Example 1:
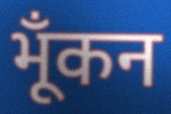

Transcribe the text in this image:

भूँकन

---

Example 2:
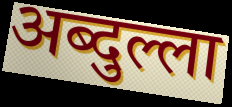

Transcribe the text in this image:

अब्दुल्ला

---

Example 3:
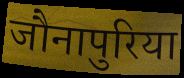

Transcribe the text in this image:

जौनापुरिया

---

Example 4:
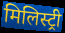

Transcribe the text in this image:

मिलिस्ट्री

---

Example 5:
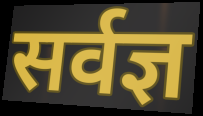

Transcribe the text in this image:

सर्वज्ञ